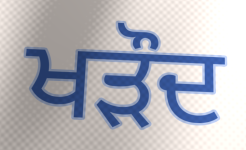
ਖੜੌਦ